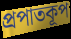
প্রপাতকূপ